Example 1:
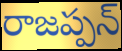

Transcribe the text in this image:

రాజప్పన్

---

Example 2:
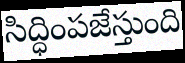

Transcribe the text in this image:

సిద్ధింపజేస్తుంది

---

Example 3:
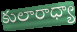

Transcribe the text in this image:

కులారాధ్యా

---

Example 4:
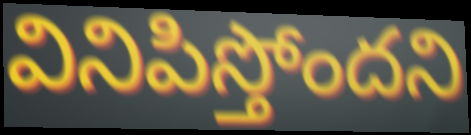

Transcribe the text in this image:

వినిపిస్తోందని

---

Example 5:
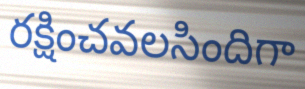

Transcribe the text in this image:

రక్షించవలసిందిగా